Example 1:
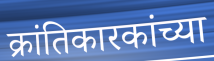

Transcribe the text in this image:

क्रांतिकारकांच्या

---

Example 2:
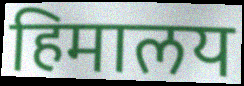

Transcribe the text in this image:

हिमालय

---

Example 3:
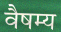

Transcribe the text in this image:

वैषम्य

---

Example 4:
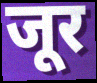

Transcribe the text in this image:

जूर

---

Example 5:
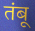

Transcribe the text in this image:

तंबू